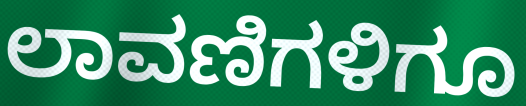
ಲಾವಣಿಗಳಿಗೂ